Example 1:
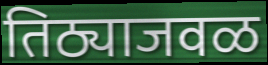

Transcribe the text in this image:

तिठ्याजवळ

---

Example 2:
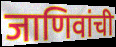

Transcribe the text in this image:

जाणिवांची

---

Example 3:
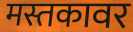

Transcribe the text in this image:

मस्तकावर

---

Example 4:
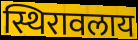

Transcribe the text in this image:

स्थिरावलाय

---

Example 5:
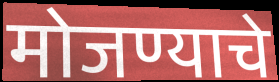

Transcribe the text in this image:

मोजण्याचे